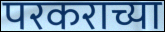
परकराच्या